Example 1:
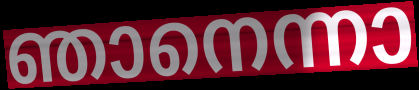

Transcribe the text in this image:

ഞാനെന്നാ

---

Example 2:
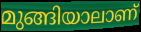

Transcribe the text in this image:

മുങ്ങിയാലാണ്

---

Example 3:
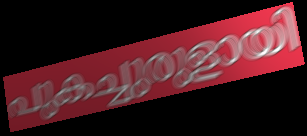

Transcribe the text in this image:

പുകച്ചുരുളായി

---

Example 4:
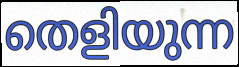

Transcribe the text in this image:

തെളിയുന്ന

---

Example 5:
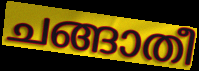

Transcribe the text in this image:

ചങ്ങാതീ